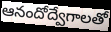
ఆనందోద్వేగాలతో